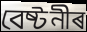
বেষ্টনীৰ